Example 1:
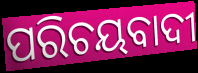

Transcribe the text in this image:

ପରିଚୟବାଦୀ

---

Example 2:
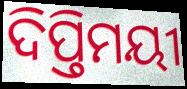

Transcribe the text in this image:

ଦିପ୍ତିମୟୀ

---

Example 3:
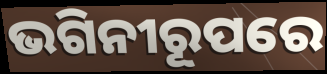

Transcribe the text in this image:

ଭଗିନୀରୂପରେ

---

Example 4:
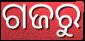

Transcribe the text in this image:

ଗଜରୁ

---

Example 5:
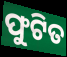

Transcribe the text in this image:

ଫୁଟିତ